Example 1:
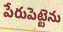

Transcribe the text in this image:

పేరుపెట్టెను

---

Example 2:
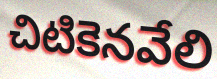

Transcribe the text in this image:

చిటికెనవేలి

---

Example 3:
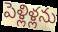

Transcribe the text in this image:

పెళ్లిళ్లను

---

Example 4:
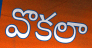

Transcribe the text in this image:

వొకలా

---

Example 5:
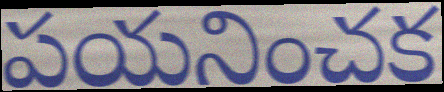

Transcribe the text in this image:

పయనించక